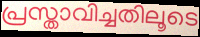
പ്രസ്താവിച്ചതിലൂടെ